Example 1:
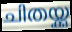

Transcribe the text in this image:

ചിതയ്ക്കു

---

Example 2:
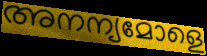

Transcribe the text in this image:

അനന്യമോളെ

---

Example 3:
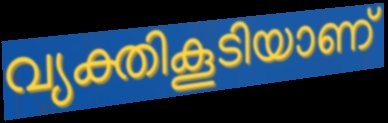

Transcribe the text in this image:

വ്യക്തികൂടിയാണ്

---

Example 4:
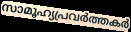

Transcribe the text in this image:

സാമൂഹ്യപ്രവർത്തകർ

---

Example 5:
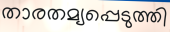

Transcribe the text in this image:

താരതമ്യപ്പെടുത്തി